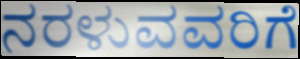
ನರಳುವವರಿಗೆ